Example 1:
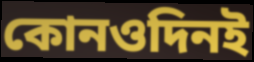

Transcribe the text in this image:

কোনওদিনই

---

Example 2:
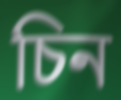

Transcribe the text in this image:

চিন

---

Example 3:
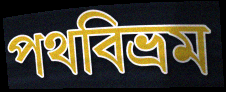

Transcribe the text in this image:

পথবিভ্রম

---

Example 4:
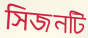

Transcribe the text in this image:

সিজনটি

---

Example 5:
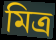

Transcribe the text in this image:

মিত্র